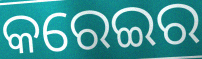
କରେଇର